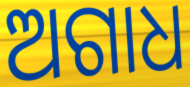
ଅଗାଧ